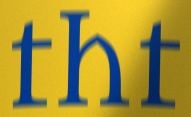
tht